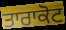
ਤਾਰਾਕੋਟ